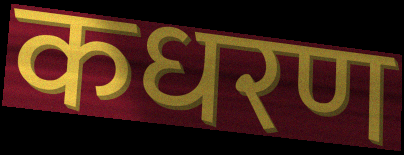
कधरण